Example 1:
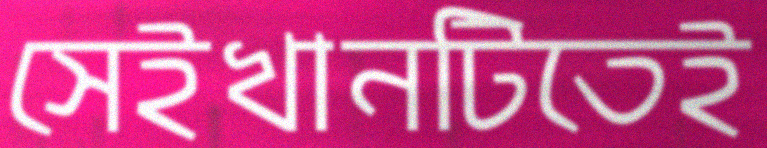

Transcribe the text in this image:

সেইখানটিতেই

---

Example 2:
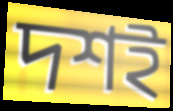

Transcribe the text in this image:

দশই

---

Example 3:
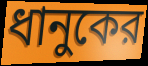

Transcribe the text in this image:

ধানুকের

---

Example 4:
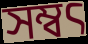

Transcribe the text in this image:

সম্বৎ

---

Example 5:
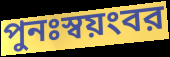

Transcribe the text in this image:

পুনঃস্বয়ংবর